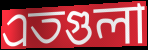
এতগুলা